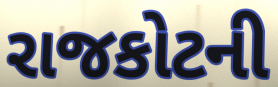
રાજકોટની